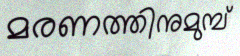
മരണത്തിനുമുമ്പ്